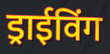
ड्राईविंग